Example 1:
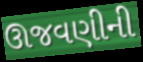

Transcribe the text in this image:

ઊજવણીની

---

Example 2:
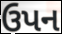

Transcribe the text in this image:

ઉપન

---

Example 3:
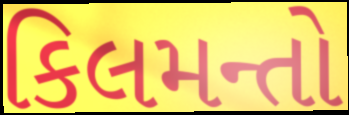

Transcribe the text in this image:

કિલમન્તો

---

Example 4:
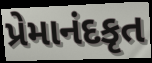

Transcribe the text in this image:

પ્રેમાનંદકૃત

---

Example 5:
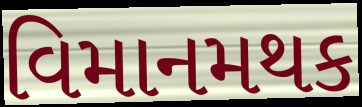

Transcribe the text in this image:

વિમાનમથક